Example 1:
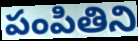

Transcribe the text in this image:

పంపితిని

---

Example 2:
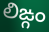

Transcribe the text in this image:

లిఙ్గం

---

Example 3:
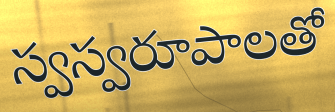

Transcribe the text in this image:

స్వస్వరూపాలతో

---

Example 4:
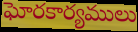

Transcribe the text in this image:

ఘోరకార్యములు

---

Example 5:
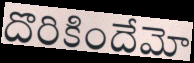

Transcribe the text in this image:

దొరికిందేమో